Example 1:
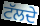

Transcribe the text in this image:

ਟੱਲਦੇ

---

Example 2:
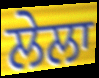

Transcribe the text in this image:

ਲੇਲਾ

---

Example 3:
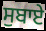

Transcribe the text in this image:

ਸੁਬਾਏ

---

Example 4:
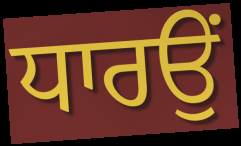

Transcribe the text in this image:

ਧਾਰਉਂ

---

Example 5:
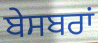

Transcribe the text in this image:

ਬੇਸਬਰਾਂ